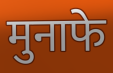
मुनाफे